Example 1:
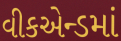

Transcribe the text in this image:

વીકએન્ડમાં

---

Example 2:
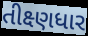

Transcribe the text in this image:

તીક્ષ્ણધાર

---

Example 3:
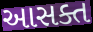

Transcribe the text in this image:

આસક્ત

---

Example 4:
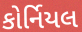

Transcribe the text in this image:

કોર્નિયલ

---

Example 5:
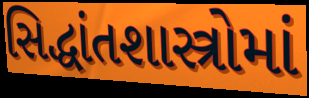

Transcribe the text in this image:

સિદ્ધાંતશાસ્ત્રોમાં